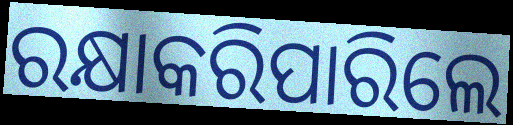
ରକ୍ଷାକରିପାରିଲେ